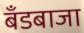
बँडबाजा